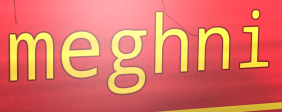
meghni